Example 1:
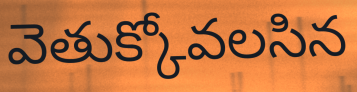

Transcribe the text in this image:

వెతుక్కోవలసిన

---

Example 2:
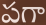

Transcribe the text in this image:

పగా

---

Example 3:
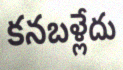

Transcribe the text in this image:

కనబళ్లేదు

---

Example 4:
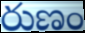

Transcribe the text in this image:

రుణం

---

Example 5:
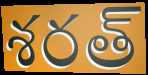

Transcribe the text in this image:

శరత్